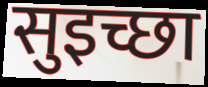
सुइच्छा